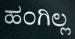
ಹಂಗಿಲ್ಲ